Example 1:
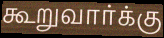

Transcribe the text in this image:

கூறுவார்க்கு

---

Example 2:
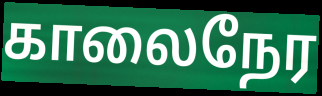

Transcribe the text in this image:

காலைநேர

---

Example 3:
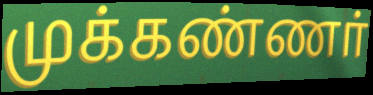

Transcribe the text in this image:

முக்கண்ணர்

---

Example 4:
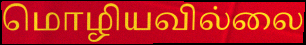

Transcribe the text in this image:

மொழியவில்லை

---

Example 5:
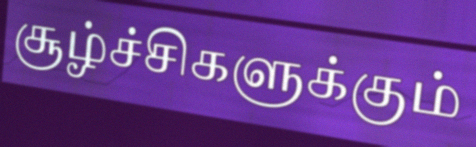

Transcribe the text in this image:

சூழ்ச்சிகளுக்கும்